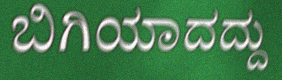
ಬಿಗಿಯಾದದ್ದು